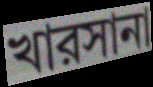
খারসানা